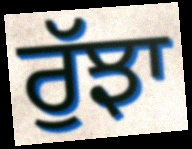
ਰੁੱਝਾ